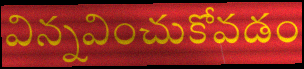
విన్నవించుకోవడం